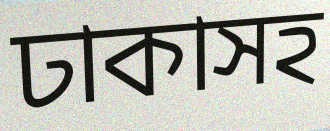
ঢাকাসহ